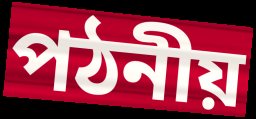
পঠনীয়